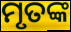
ମୃତଙ୍କ